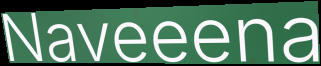
Naveeena